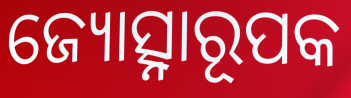
ଜ୍ୟୋତ୍ସ୍ନାରୂପକ